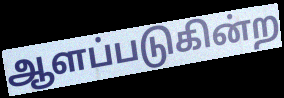
ஆளப்படுகின்ற